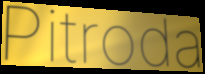
Pitroda